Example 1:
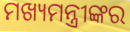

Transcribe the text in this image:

ମଖ୍ୟମନ୍ତ୍ରୀଙ୍କର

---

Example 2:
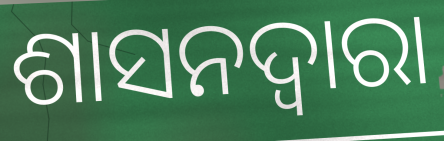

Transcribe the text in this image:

ଶାସନଦ୍ୱାରା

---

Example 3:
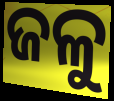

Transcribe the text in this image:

ଜଳୁ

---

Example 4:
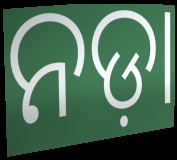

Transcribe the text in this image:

ନଡ଼ା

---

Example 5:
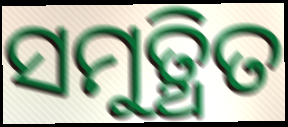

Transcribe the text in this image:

ସମୁତ୍ଥିତ